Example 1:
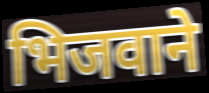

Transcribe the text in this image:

भिजवाने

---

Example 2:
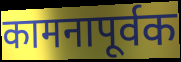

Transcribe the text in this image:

कामनापूर्वक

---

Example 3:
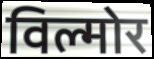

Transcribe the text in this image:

विल्मोर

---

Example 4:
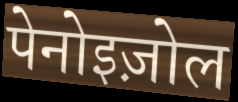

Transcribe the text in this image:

पेनोइज़ोल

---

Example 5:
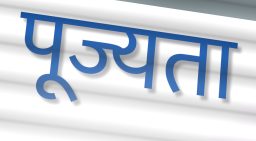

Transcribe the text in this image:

पूज्यता